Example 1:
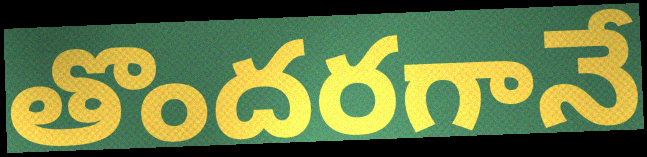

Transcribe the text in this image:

తొందరగానే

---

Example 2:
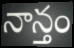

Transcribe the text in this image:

నాన్తం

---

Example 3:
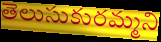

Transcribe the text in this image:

తెలుసుకురమ్మని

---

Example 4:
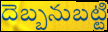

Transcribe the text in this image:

దెబ్బనుబట్టి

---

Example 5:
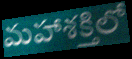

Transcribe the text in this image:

మహాశక్తిలో